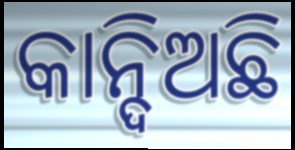
କାନ୍ଦିଅଛି